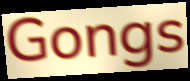
Gongs